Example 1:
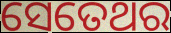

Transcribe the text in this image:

ସେତେଥର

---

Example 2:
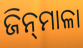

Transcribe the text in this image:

ଜିନ୍‌ମାଳା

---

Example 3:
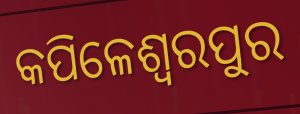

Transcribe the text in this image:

କପିଳେଶ୍ୱରପୁର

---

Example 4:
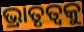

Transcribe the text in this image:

ଭ୍ରାତୃତ୍ୱକୁ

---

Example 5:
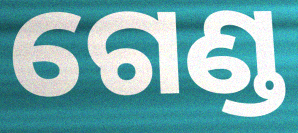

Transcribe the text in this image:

ଗେଣ୍ଡ